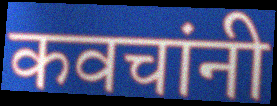
कवचांनी